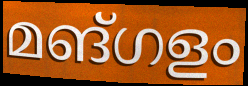
മങ്ഗളം